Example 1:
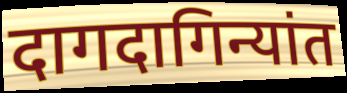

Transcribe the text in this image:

दागदागिन्यांत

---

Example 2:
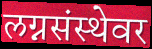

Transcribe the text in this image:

लग्नसंस्थेवर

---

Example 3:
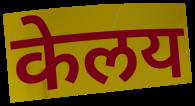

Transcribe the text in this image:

केलय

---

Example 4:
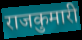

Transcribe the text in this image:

राजकुमारी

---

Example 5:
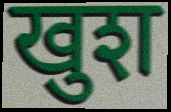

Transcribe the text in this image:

खुश